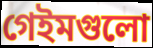
গেইমগুলো